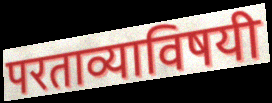
परताव्याविषयी